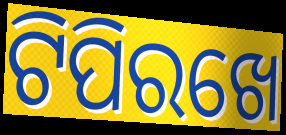
ଟିପିରଖେ